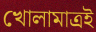
খোলামাত্রই